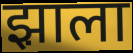
झ़ाला